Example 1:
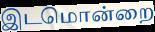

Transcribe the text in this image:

இடமொன்றை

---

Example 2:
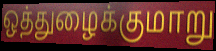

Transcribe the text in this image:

ஒத்துழைக்குமாறு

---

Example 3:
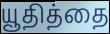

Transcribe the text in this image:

யூதித்தை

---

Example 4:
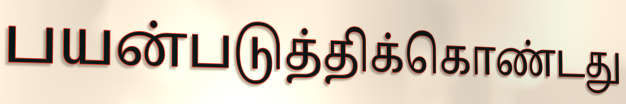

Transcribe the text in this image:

பயன்படுத்திக்கொண்டது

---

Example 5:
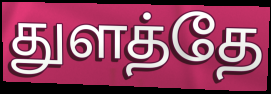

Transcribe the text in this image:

துளத்தே